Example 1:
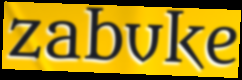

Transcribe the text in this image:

zabuke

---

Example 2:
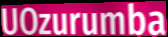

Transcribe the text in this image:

UOzurumba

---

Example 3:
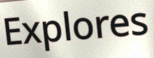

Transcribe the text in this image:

Explores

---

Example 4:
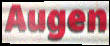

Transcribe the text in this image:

Augen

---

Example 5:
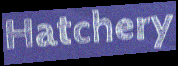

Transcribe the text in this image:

Hatchery